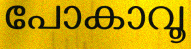
പോകാവൂ